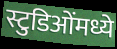
स्टुडिओंमध्ये